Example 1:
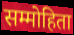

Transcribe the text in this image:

सम्मोहिता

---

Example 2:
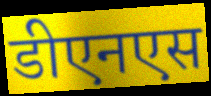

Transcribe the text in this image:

डीएनएस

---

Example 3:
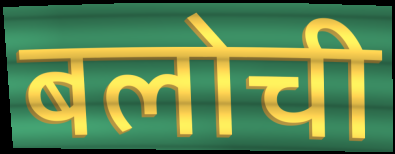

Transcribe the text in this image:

बलोची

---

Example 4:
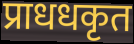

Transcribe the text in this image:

प्राधधकृत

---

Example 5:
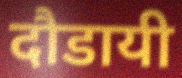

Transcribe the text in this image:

दौडायी